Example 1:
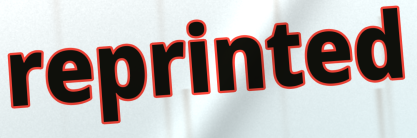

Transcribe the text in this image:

reprinted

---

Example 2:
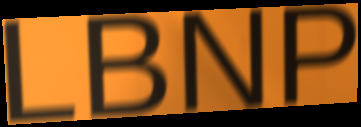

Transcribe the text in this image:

LBNP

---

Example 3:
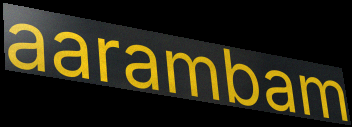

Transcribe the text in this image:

aarambam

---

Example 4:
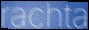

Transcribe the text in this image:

rachta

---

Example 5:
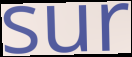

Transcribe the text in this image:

sur